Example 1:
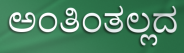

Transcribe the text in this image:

ಅಂತಿಂತಲ್ಲದ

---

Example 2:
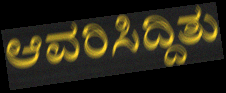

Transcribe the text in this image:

ಆವರಿಸಿದ್ದಿತು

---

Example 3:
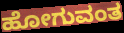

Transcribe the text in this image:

ಹೋಗುವಂತ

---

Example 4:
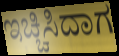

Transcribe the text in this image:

ಇಚ್ಚಿಸಿದಾಗ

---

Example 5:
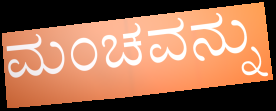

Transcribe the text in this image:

ಮಂಚವನ್ನು